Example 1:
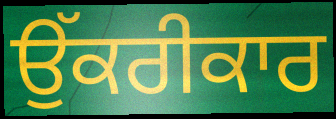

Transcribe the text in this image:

ਉੱਕਰੀਕਾਰ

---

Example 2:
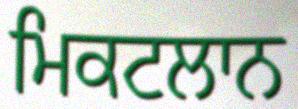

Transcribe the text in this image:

ਮਿਕਟਲਾਨ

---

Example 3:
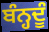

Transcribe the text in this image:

ਬੰਨ੍ਹਦੂੰ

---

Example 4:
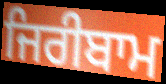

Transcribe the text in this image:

ਜਿਰੀਬਾਮ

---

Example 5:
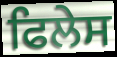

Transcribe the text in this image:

ਫਿਲੇਸ